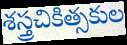
శస్త్రచికిత్సకుల